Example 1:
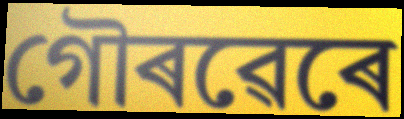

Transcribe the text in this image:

গৌৰৱেৰে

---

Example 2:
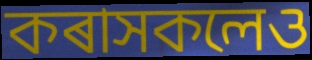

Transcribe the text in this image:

কৰাসকলেও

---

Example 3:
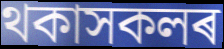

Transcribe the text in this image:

থকাসকলৰ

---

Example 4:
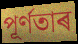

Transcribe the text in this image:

পূৰ্ণতাৰ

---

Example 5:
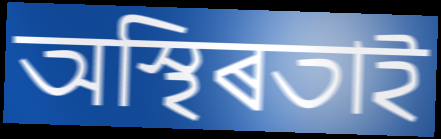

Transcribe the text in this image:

অস্থিৰতাই